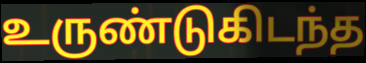
உருண்டுகிடந்த